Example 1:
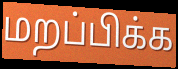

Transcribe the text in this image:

மறப்பிக்க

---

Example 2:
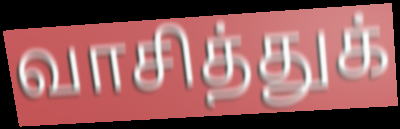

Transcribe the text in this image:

வாசித்துக்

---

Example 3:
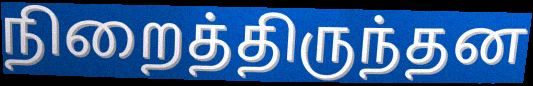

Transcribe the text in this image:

நிறைத்திருந்தன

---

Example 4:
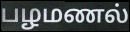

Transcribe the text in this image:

பழமணல்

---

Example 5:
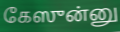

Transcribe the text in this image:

கேஸுன்னு